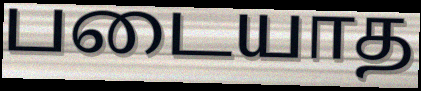
படையாத